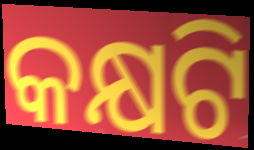
କକ୍ଷଟି